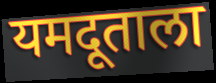
यमदूताला